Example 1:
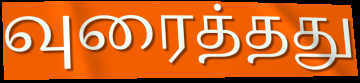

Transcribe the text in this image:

வுரைத்தது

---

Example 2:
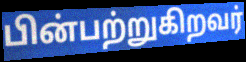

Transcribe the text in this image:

பின்பற்றுகிறவர்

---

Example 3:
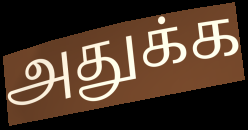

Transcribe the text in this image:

அதுக்க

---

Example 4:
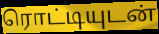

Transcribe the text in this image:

ரொட்டியுடன்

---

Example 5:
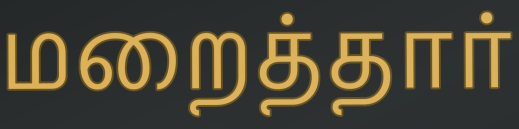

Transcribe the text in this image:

மறைத்தார்